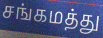
சங்கமத்து